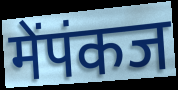
मेंपंकज